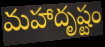
మహాదృష్టం